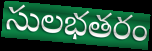
సులభతరం